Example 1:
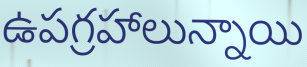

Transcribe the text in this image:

ఉపగ్రహాలున్నాయి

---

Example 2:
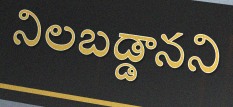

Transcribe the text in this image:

నిలబడ్డానని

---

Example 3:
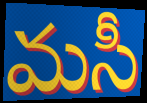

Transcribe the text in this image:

మసీ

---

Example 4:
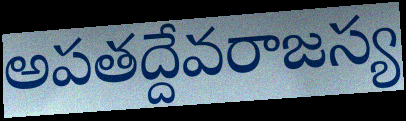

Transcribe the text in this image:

అపతద్దేవరాజస్య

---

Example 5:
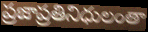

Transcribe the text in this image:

ప్రజాప్రతినిధులంతా